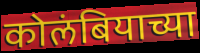
कोलंबियाच्या